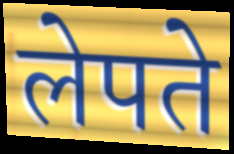
लेपते